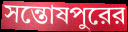
সন্তোষপুরের